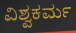
ವಿಶ್ವಕರ್ಮ